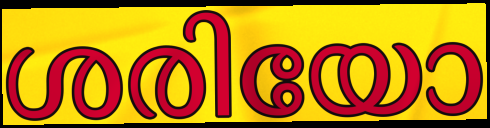
ശരിയോ